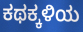
ಕಥಕ್ಕಳಿಯ